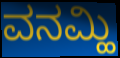
ವನಮ್ಹಿ